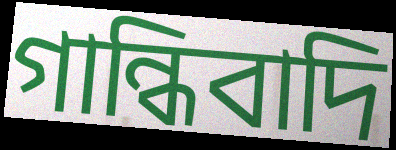
গান্ধিবাদি